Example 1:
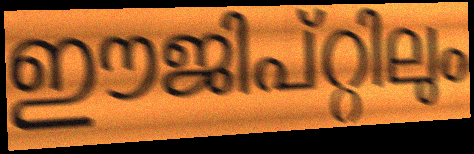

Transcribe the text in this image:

ഈജിപ്റ്റിലും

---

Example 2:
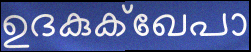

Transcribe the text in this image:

ഉദകുക്ഖേപാ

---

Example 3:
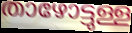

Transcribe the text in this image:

താഴോട്ടുള്ള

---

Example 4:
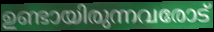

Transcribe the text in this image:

ഉണ്ടായിരുന്നവരോട്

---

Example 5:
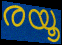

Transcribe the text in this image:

രയൂ